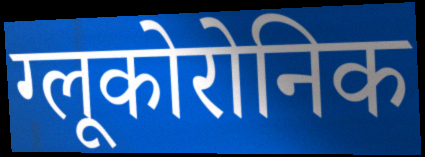
ग्लूकोरोनिक